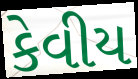
કેવીય